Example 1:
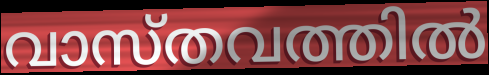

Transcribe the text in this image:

വാസ്തവത്തിൽ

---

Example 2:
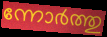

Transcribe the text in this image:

ന്നോർത്തു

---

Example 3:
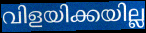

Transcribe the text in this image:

വിളയിക്കയില്ല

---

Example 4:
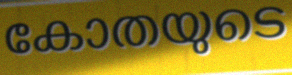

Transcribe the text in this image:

കോതയുടെ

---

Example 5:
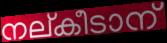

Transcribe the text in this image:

നല്കീടാന്